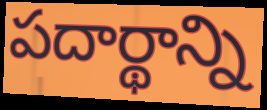
పదార్థాన్ని